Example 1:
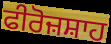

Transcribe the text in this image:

ਫੀਰੋਜ਼ਸ਼ਾਹ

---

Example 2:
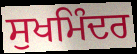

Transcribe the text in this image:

ਸੁਖਮਿੰਦਰ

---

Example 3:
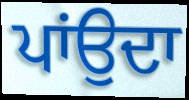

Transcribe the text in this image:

ਪਾਂਉਦਾ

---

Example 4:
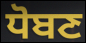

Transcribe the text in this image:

ਧੋਬਣ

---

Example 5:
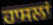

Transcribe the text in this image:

ਹਾਸਲਾਂ